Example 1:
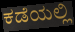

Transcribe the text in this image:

ಕಡೆಯಲ್ಲಿ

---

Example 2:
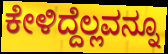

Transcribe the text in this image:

ಕೇಳಿದ್ದೆಲ್ಲವನ್ನೂ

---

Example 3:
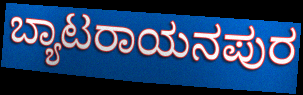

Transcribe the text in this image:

ಬ್ಯಾಟರಾಯನಪುರ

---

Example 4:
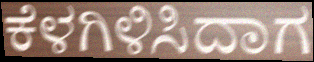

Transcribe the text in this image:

ಕೆಳಗಿಳಿಸಿದಾಗ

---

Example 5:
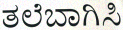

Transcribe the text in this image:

ತಲೆಬಾಗಿಸಿ